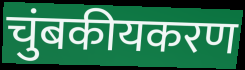
चुंबकीयकरण